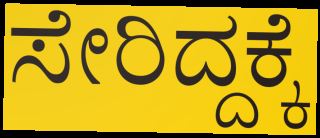
ಸೇರಿದ್ದಕ್ಕೆ